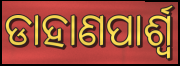
ଡାହାଣପାର୍ଶ୍ୱ